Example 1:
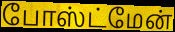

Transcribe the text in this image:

போஸ்ட்மேன்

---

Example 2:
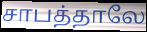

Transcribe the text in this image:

சாபத்தாலே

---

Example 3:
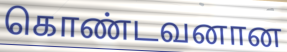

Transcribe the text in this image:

கொண்டவனான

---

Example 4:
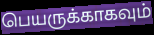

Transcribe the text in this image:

பெயருக்காகவும்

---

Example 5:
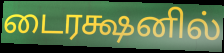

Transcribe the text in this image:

டைரக்ஷனில்